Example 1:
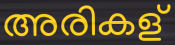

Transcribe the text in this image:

അരികള്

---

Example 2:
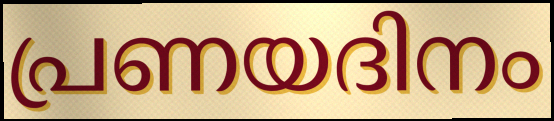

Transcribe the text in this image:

പ്രണയദിനം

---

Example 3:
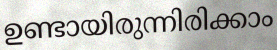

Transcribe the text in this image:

ഉണ്ടായിരുന്നിരിക്കാം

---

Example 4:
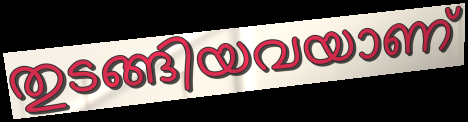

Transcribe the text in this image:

തുടങ്ങിയവയാണ്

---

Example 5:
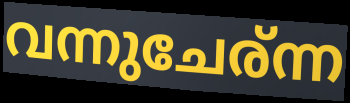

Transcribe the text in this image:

വന്നുചേര്ന്ന